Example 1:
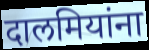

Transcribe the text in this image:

दालमियांना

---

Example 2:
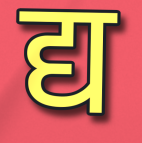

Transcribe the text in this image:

द्य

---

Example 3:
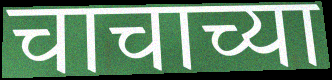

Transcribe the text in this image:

चाचाच्या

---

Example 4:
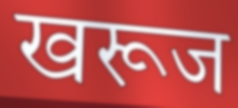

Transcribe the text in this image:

खरूज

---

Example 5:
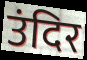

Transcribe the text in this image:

उंदिर